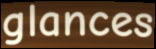
glances